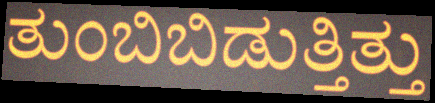
ತುಂಬಿಬಿಡುತ್ತಿತ್ತು